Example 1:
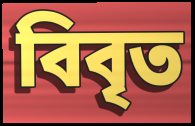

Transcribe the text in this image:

বিবৃত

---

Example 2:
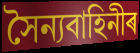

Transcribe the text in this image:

সৈন্যবাহিনীৰ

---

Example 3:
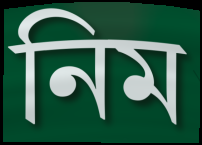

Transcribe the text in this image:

নিম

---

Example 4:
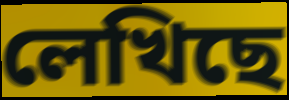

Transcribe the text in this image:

লেখিছে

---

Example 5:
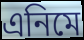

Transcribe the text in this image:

এনিমে